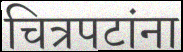
चित्रपटांना